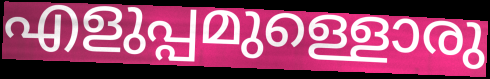
എളുപ്പമുള്ളൊരു